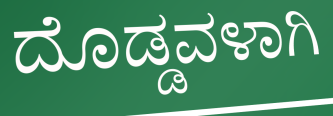
ದೊಡ್ಡವಳಾಗಿ